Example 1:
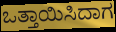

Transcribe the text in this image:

ಒತ್ತಾಯಿಸಿದಾಗ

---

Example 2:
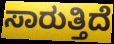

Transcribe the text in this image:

ಸಾರುತ್ತಿದೆ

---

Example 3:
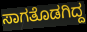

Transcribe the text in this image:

ಸಾಗತೊಡಗಿದ್ದ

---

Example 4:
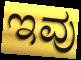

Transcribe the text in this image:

ಇವು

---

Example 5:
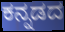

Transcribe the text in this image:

ಕನ್ನಡದ